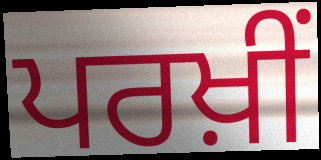
ਪਰਖ਼ੀਂ